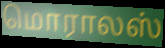
மொராலஸ்